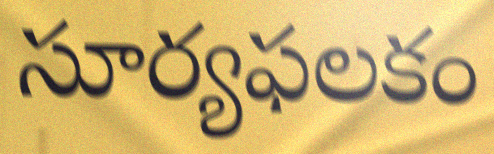
సూర్యఫలకం